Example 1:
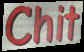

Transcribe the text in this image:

Chit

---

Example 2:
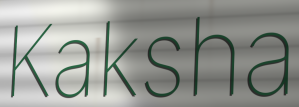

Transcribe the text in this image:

Kaksha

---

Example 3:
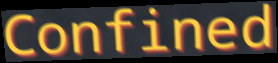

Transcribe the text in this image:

Confined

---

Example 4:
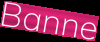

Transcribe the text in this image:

Banne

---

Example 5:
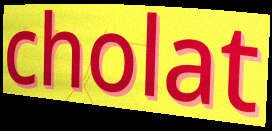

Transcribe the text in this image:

cholat